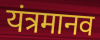
यंत्रमानव